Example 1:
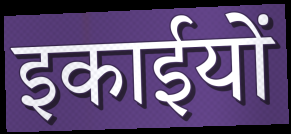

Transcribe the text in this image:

इकाईयों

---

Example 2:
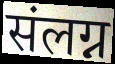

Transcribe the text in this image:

संलग्न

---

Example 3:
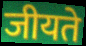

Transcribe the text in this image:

जीयते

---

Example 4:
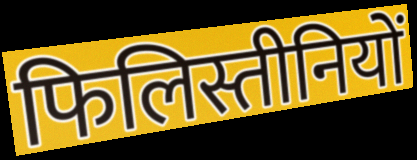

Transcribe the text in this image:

फिलिस्तीनियों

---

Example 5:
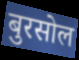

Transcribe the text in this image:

बुरसोल